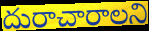
దురాచారాలని